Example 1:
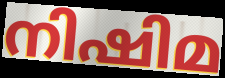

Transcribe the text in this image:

നിഷിമ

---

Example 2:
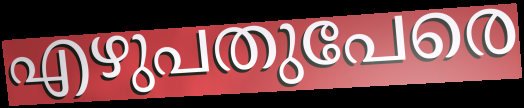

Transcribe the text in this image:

എഴുപതുപേരെ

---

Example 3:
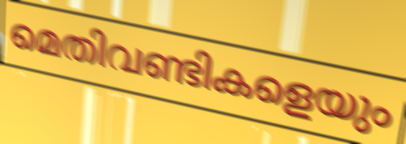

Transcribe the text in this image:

മെതിവണ്ടികളെയും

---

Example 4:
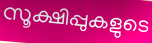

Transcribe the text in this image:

സൂക്ഷിപ്പുകളുടെ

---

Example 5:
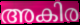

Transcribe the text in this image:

അകിര